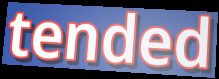
tended